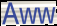
Aww